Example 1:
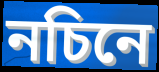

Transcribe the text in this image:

নচিনে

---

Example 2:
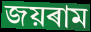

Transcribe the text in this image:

জয়ৰাম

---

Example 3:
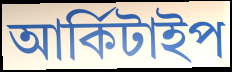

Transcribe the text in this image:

আৰ্কিটাইপ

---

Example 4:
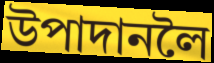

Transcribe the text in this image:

উপাদানলৈ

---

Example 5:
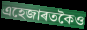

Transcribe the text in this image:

এহেজাৰতকৈও